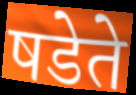
षडेते